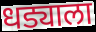
धड्याला